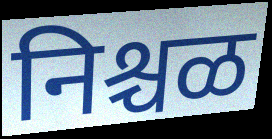
निश्चळ